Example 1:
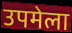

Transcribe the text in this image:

उपमेला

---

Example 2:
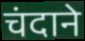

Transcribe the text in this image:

चंदाने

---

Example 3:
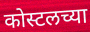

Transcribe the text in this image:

कोस्टलच्या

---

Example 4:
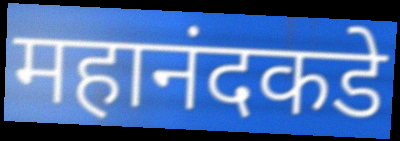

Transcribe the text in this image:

महानंदकडे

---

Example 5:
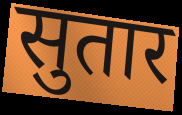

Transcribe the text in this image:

सुतार